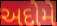
અદોમે